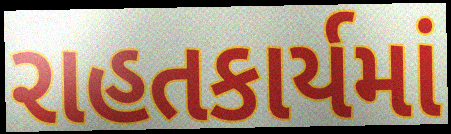
રાહતકાર્યમાં